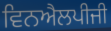
ਵਿਨਐਲਪੀਜੀ